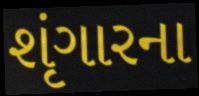
શૃંગારના